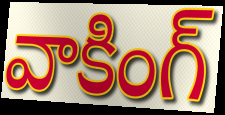
వాకింగ్